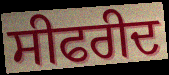
ਸੀਫਰੀਦ